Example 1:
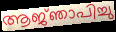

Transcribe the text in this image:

ആജ്‌ഞാപിച്ചു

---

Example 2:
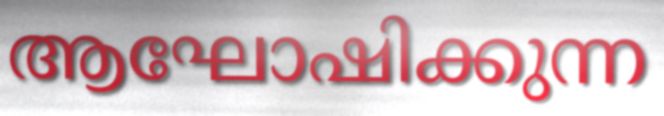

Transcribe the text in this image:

ആഘോഷിക്കുന്ന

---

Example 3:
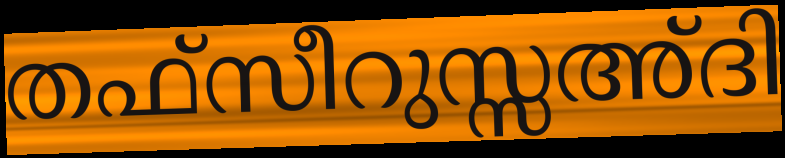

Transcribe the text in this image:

തഫ്സീറുസ്സഅ്ദി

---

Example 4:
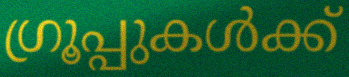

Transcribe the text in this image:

ഗ്രൂപ്പുകൾക്ക്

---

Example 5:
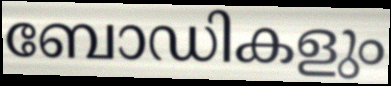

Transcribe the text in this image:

ബോഡികളും